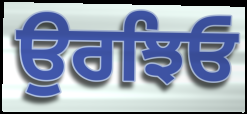
ਉਰਝਿਓ